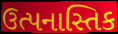
ઉત્પનાસ્તિક